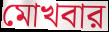
মোখবার